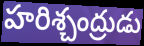
హరిశ్చంద్రుడు